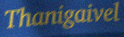
Thanigaivel